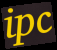
ipc